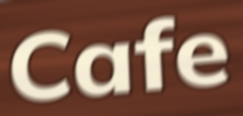
Cafe